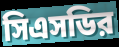
সিএসডির